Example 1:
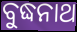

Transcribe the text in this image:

ବୁଦ୍ଧନାଥ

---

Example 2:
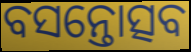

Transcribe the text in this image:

ବସନ୍ତୋତ୍ସବ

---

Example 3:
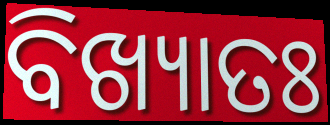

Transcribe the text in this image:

ବିଖ୍ୟାତଃ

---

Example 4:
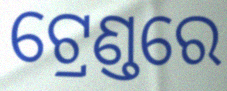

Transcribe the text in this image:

ଟ୍ରେଣ୍ଡରେ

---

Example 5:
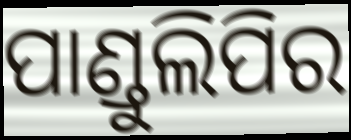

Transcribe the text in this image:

ପାଣ୍ଡୁଲିପିର